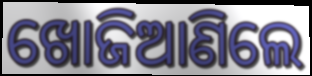
ଖୋଜିଆଣିଲେ